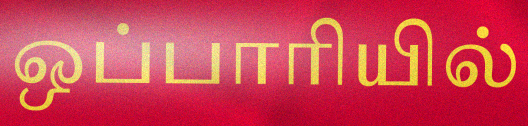
ஒப்பாரியில்